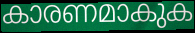
കാരണമാകുക